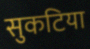
सुकटिया